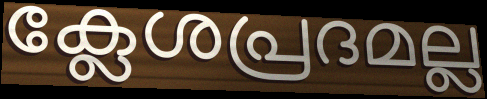
ക്ലേശപ്രദമല്ല